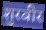
शुरवीर